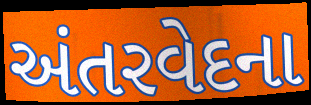
અંતરવેદના